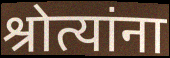
श्रोत्यांना